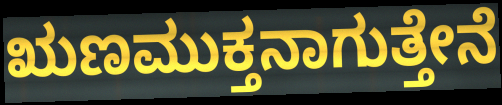
ಋಣಮುಕ್ತನಾಗುತ್ತೇನೆ